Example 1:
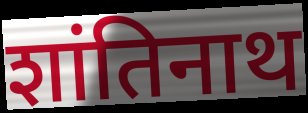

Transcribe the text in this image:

शांतिनाथ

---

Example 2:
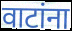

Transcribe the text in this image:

वाटांना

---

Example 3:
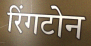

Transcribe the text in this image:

रिंगटोन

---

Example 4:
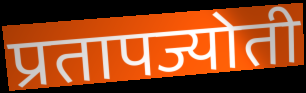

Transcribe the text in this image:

प्रतापज्योती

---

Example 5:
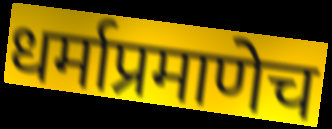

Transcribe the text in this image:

धर्माप्रमाणेच